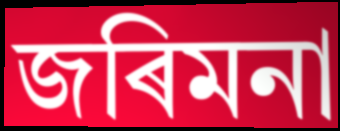
জৰিমনা